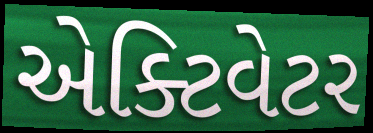
એક્ટિવેટર